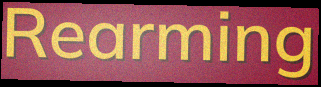
Rearming